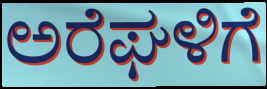
ಅರೆಘಳಿಗೆ